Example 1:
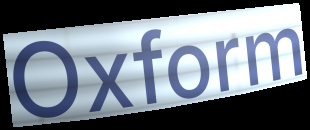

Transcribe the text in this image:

Oxform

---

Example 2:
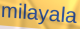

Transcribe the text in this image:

milayala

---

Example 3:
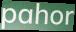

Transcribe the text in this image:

pahor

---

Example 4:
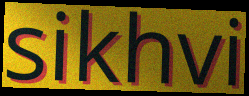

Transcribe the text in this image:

sikhvi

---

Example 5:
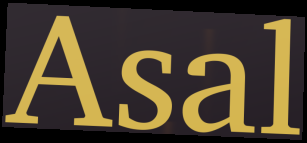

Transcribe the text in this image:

Asal